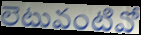
లెటువంటివో